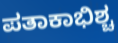
ಪತಾಕಾಭಿಶ್ಚ